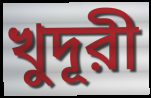
খুদূরী